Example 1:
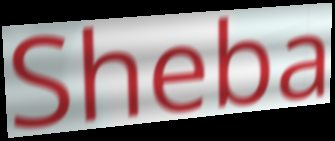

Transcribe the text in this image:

Sheba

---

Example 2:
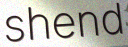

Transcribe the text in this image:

shend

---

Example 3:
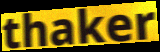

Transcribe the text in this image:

thaker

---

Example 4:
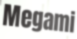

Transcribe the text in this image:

Megami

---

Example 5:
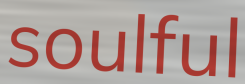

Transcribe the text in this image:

soulful